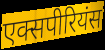
एक्सपीरियंस